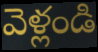
వెళ్లండి